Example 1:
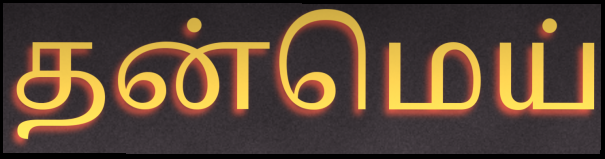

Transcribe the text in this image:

தன்மெய்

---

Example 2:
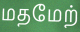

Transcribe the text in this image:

மதமேற்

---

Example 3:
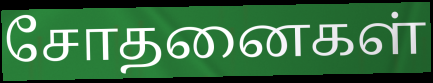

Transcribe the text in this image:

சோதனைகள்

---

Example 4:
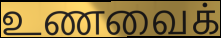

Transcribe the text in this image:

உணவைக்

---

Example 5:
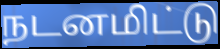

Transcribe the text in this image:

நடனமிட்டு